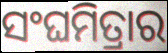
ସଂଘମିତ୍ରାର